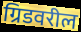
ग्रिडवरील